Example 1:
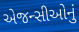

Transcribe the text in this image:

એજન્સીઓનું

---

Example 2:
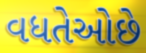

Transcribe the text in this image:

વધતેઓછે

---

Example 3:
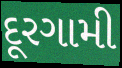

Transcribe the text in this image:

દૂરગામી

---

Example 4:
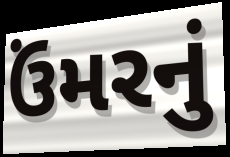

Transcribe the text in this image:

ઉંમરનું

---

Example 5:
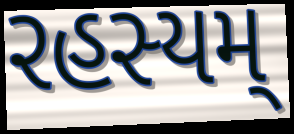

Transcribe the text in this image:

રહસ્યમ્